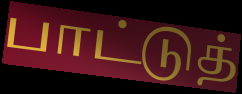
பாட்டுத்